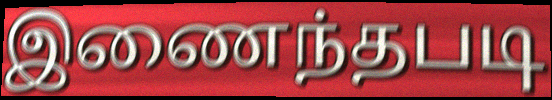
இணைந்தபடி